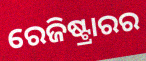
ରେଜିଷ୍ଟ୍ରାରର